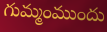
గుమ్మంముందు